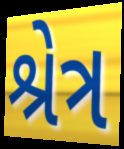
શ્રેત્ર